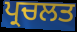
ਪ੍ਰਚਲਤ